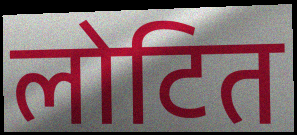
लोटित